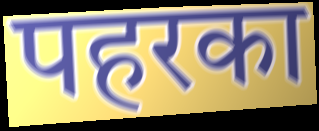
पहरका